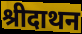
श्रीदाथन